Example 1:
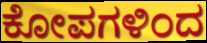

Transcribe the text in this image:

ಕೋಪಗಳಿಂದ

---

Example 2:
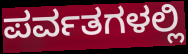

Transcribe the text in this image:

ಪರ್ವತಗಳಲ್ಲಿ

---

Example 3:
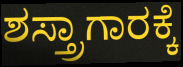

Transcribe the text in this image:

ಶಸ್ತ್ರಾಗಾರಕ್ಕೆ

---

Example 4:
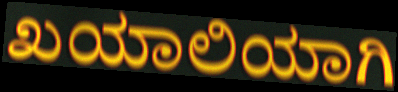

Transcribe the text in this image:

ಖಯಾಲಿಯಾಗಿ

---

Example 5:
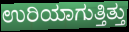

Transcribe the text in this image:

ಉರಿಯಾಗುತ್ತಿತ್ತು